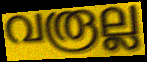
വരൂല്ല